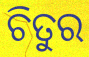
ଚିତୁର